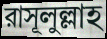
রাসূলুল্লাহ